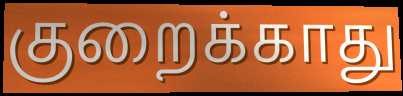
குறைக்காது